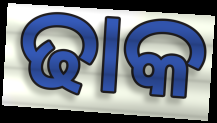
ଢାକ